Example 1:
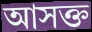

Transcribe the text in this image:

আসক্ত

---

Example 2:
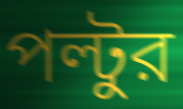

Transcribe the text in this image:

পল্টুর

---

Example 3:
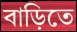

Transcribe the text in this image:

বাড়িতে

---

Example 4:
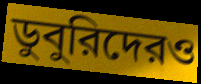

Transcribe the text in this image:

ডুবুরিদেরও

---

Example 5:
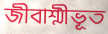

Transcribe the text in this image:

জীবাশ্মীভূত